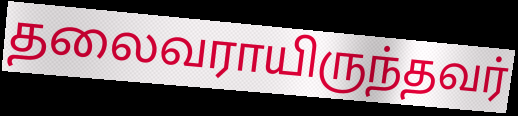
தலைவராயிருந்தவர்